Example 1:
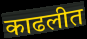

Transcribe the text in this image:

काढलीत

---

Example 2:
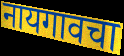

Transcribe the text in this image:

नायगावचा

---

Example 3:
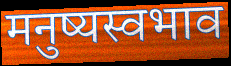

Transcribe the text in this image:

मनुष्यस्वभाव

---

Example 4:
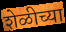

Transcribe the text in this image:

शेळीच्या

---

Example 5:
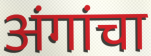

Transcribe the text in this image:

अंगांचा